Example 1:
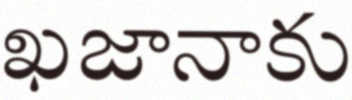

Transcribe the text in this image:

ఖజానాకు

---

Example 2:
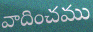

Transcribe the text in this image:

వాదించము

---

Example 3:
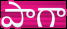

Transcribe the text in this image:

పాగా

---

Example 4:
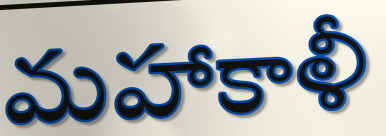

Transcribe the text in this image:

మహాకాళీ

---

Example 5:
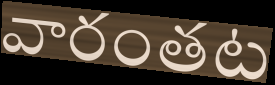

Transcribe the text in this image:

వారంతట